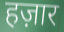
हज़ार